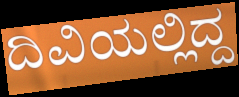
ದಿವಿಯಲ್ಲಿದ್ದ